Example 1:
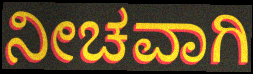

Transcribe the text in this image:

ನೀಚವಾಗಿ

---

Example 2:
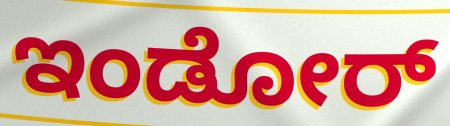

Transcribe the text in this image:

ಇಂಡೋರ್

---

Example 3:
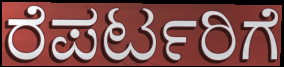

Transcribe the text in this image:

ರೆಪರ್ಟರಿಗೆ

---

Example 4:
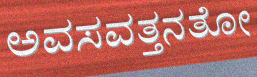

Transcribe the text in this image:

ಅವಸವತ್ತನತೋ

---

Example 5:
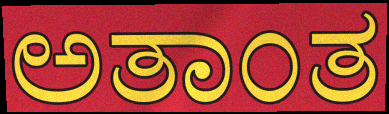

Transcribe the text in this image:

ಅತಾಂತ